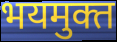
भयमुक्‍त